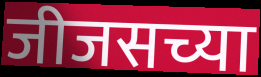
जीजसच्या